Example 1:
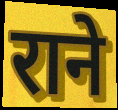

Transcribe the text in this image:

राने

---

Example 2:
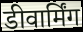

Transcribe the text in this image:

डीवार्मिंग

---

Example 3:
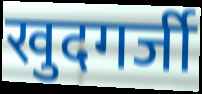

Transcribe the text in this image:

खुदगर्जी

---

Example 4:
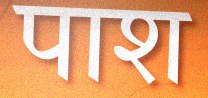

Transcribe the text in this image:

पाश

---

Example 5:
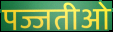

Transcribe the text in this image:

पज्जतीओ